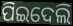
ପିଇଦେଲି